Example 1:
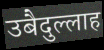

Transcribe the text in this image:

उबैदुल्लाह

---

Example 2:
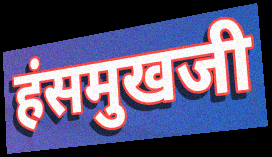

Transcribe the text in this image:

हंसमुखजी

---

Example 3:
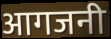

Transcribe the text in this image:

आगजनी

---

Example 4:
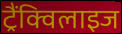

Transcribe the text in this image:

ट्रैंक्विलाइज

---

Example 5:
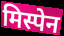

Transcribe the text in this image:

मिस्पेन